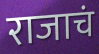
राजाचं